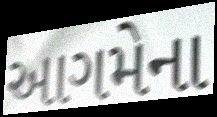
આગમેના